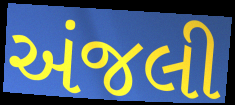
અંજલી